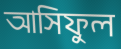
আসিফুল